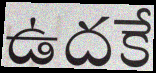
ఉదకే